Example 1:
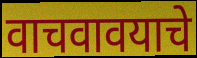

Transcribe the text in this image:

वाचवावयाचे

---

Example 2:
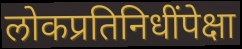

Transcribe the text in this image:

लोकप्रतिनिधींपेक्षा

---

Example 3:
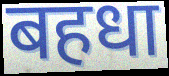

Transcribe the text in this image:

बहधा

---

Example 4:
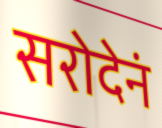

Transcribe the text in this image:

सरोदेनं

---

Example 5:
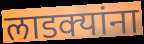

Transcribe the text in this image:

लाडक्यांना